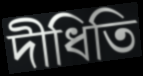
দীধিতি